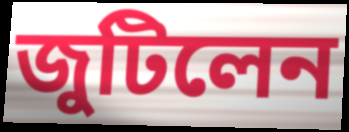
জুটিলেন